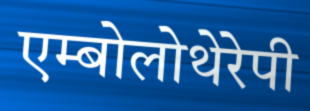
एम्बोलोथेरेपी